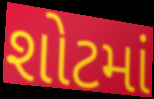
શોટમાં